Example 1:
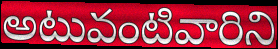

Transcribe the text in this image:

అటువంటివారిని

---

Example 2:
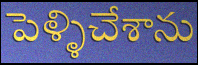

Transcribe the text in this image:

పెళ్ళిచేశాను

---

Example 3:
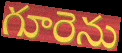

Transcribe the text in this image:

గూరెను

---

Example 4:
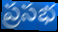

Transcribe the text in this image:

ప్రసభ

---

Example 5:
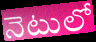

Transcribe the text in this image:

నెటులో